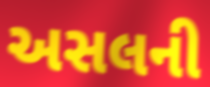
અસલની